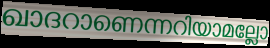
ഖാദറാണെന്നറിയാമല്ലോ